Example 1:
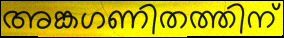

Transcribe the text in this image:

അങ്കഗണിതത്തിന്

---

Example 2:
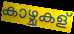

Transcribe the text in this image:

കാഴ്ചകള്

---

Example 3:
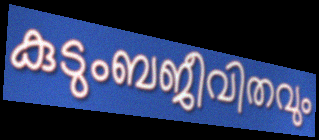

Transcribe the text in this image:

കുടുംബജീവിതവും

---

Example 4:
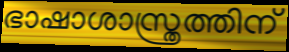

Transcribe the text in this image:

ഭാഷാശാസ്ത്രത്തിന്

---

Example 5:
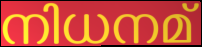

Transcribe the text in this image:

നിധനമ്